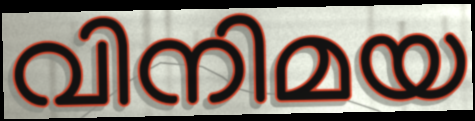
വിനിമയ